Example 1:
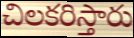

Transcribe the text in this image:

చిలకరిస్తారు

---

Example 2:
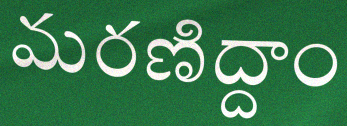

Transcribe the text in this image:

మరణిద్దాం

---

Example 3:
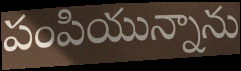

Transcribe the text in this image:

పంపియున్నాను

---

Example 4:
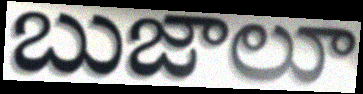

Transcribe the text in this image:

బుజాలూ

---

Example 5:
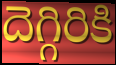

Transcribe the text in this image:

దెగ్గిరికి